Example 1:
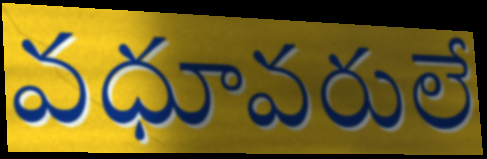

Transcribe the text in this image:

వధూవరులే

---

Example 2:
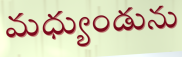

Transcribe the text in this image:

మధ్యుండును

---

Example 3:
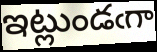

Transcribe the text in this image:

ఇట్లుండఁగా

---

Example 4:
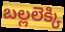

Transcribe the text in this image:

బల్లలెక్కి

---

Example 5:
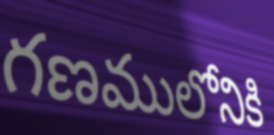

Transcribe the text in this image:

గణములోనికి